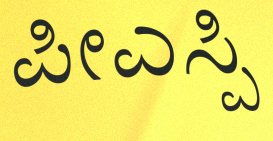
ಪೀಎಸ್ಪಿ